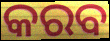
କରବ